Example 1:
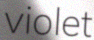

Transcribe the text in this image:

violet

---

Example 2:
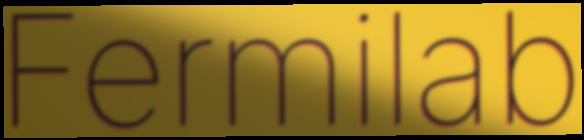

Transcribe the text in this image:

Fermilab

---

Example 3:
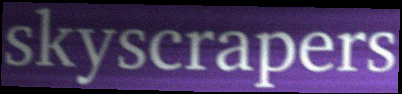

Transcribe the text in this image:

skyscrapers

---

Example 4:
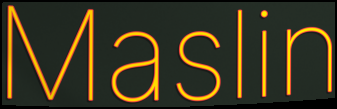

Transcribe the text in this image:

Maslin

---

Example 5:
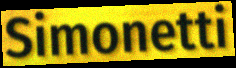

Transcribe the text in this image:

Simonetti